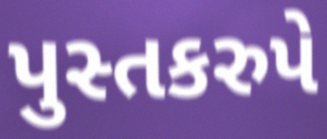
પુસ્તકરુપે